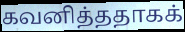
கவனித்ததாகக்